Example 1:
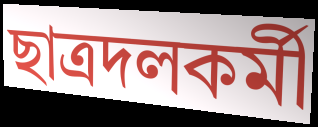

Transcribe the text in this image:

ছাত্রদলকর্মী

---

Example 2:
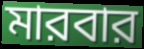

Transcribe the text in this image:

মারবার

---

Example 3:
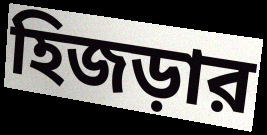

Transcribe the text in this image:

হিজড়ার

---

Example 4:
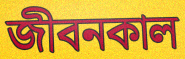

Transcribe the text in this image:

জীবনকাল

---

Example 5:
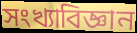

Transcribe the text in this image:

সংখ্যাবিজ্ঞান